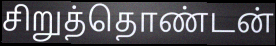
சிறுத்தொண்டன்